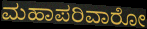
ಮಹಾಪರಿವಾರೋ